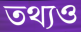
তথ্যও